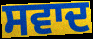
ਸਵਾਦ